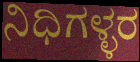
ನಿಧಿಗಳ್ಳರ